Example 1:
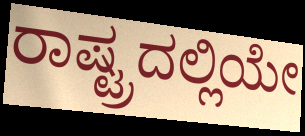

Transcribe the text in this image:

ರಾಷ್ಟ್ರದಲ್ಲಿಯೇ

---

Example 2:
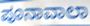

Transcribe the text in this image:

ಪೂನಾವಾಲಾ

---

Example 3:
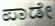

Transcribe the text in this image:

ಪಾಡೇ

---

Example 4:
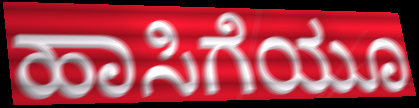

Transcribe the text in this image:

ಹಾಸಿಗೆಯೂ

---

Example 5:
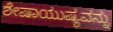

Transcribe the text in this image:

ಶೇಷಾಯುಷ್ಯವನ್ನು